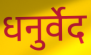
धनुर्वेद